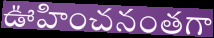
ఊహించనంతగా